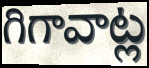
గిగావాట్ల